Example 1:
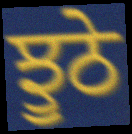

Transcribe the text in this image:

ਝੂਠੇ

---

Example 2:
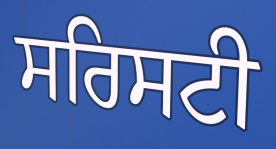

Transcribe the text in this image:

ਸਰਿਸਟੀ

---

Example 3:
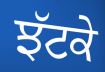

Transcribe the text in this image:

ਝੱਟਕੇ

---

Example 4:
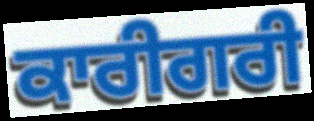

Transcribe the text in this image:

ਕਾਰੀਗਰੀ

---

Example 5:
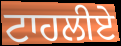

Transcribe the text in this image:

ਟਾਹਲੀਏ